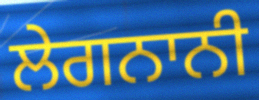
ਲੇਗਨਾਨੀ